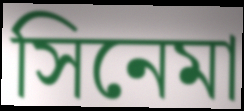
সিনেমা